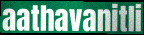
aathavanitli